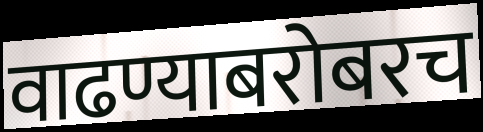
वाढण्याबरोबरच